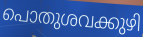
പൊതുശവക്കുഴി